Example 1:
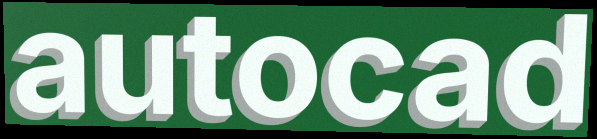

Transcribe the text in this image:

autocad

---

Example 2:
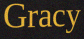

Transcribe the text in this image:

Gracy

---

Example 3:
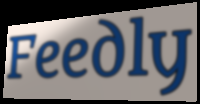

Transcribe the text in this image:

Feedly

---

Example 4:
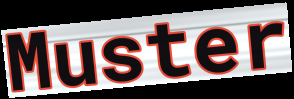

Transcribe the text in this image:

Muster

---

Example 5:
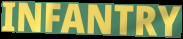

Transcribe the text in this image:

INFANTRY